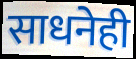
साधनेही